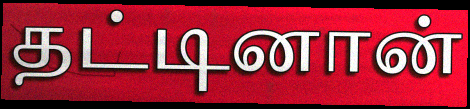
தட்டினான்